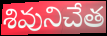
శివునిచేత